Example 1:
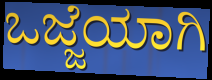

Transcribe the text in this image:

ಒಜ್ಜೆಯಾಗಿ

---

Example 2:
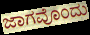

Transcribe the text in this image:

ಜಾಗವೊಂದು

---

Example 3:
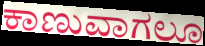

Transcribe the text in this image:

ಕಾಣುವಾಗಲೂ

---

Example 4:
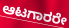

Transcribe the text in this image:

ಆಟಗಾರರೇ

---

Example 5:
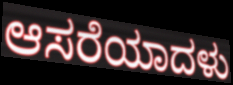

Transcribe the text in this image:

ಆಸರೆಯಾದಳು